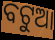
ବଟୁଆ